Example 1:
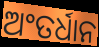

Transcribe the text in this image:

ଅଂତର୍ଧାନ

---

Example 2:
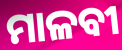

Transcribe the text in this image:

ମାଳବୀ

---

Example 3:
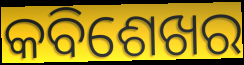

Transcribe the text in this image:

କବିଶେଖର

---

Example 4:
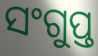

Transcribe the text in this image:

ସଂଗୁପ୍ତ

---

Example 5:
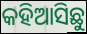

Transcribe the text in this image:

କହିଆସିଛୁ